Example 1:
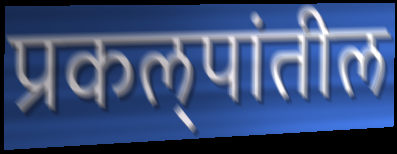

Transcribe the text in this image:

प्रकल्पांतील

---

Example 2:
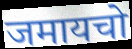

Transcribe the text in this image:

जमायचो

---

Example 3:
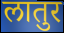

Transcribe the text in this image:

लातुर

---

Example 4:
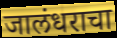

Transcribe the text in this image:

जालंधराचा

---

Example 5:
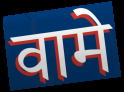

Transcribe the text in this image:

वामे